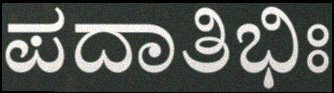
ಪದಾತಿಭಿಃ